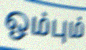
ஒம்பும்